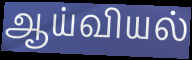
ஆய்வியல்